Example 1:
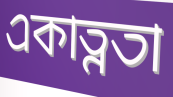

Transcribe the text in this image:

একাত্নতা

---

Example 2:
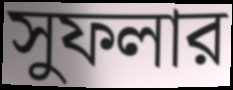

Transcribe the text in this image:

সুফলার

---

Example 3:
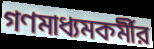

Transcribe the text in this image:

গণমাধ্যমকর্মীর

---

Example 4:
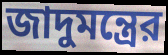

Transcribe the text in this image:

জাদুমন্ত্রের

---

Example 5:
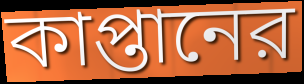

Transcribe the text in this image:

কাপ্তানের